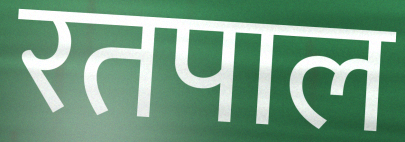
रतपाल